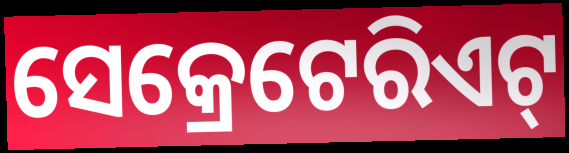
ସେକ୍ରେଟେରିଏଟ୍